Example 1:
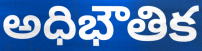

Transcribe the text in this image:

అధిభౌతిక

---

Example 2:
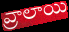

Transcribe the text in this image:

వ్రాలాయి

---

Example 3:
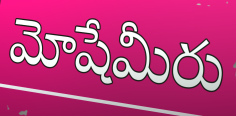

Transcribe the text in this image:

మోషేమీరు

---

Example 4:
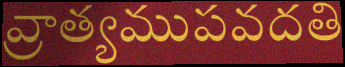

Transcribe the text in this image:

వ్రాత్యముపవదతి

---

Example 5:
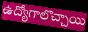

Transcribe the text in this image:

ఉద్యోగాలొచ్చాయి